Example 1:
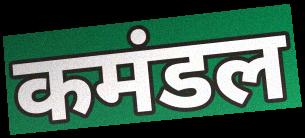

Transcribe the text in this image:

कमंडल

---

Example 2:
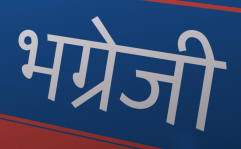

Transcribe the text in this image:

भग्रेजी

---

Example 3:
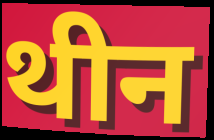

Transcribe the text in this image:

थीन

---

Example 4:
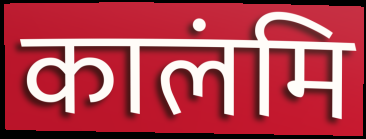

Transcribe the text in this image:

कालंमि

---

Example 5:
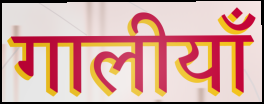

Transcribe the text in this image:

गालीयाँ